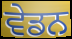
ਵੇਡਨ